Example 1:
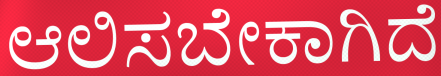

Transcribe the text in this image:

ಆಲಿಸಬೇಕಾಗಿದೆ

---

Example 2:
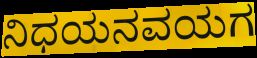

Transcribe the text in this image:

ನಿಧಯನವಯಗ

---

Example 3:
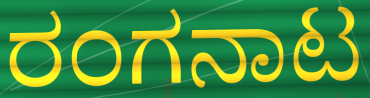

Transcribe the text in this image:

ರಂಗನಾಟ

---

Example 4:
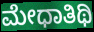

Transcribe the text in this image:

ಮೇಧಾತಿಥಿ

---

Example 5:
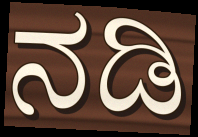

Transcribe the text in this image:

ನಡಿ